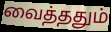
வைத்ததும்